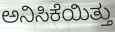
ಅನಿಸಿಕೆಯಿತ್ತು